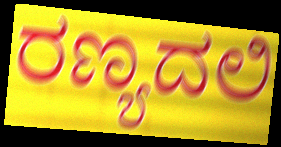
ರಣ್ಯದಲಿ